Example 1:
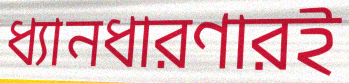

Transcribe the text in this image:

ধ্যানধারণারই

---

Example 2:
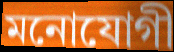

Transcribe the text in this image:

মনোযোগী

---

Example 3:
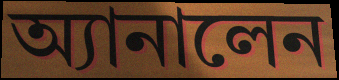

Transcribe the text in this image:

অ্যানালেন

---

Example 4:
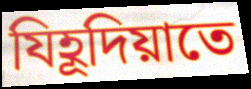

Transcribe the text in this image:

যিহূদিয়াতে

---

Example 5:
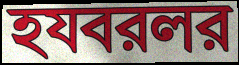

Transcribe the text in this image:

হযবরলর